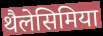
थैलेसिमिया